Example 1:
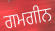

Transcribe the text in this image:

ਗਮਗੀਨ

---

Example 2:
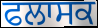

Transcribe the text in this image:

ਫਲਾਸਕ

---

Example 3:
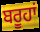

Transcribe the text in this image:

ਬਰੂਹਾਂ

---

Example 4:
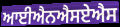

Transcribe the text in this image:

ਆਈਐਨਐਸਏਐਸ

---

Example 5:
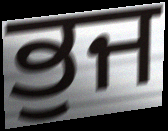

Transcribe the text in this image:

ਭੁਜ